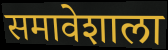
समावेशाला